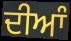
ਦੀਆੰ